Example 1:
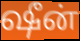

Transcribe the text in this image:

ஷீன்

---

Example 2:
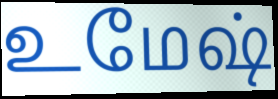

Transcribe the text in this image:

உமேஷ்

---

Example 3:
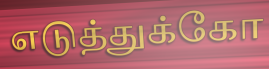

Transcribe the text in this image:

எடுத்துக்கோ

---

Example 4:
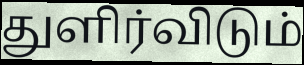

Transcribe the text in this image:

துளிர்விடும்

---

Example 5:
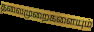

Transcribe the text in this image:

தலைமுறைகளையும்